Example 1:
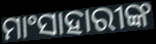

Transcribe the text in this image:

ମାଂସାହାରୀଙ୍କ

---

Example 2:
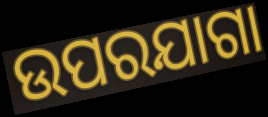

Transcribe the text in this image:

ଉପରଯାଗା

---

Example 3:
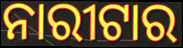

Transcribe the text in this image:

ନାରୀଟାର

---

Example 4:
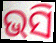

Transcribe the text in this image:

ଭସି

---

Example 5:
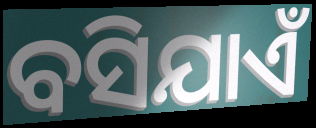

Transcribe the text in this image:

ବସିଯାଏଁ